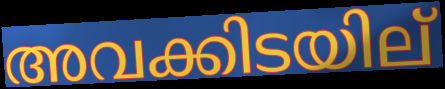
അവക്കിടയില്